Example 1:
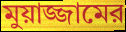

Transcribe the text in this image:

মুয়াজ্জামের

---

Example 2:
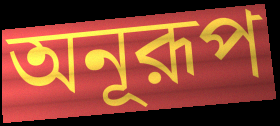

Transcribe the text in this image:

অনূরূপ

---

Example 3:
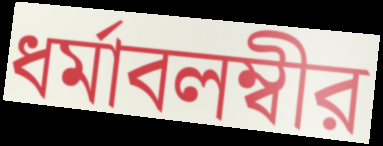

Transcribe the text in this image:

ধর্মাবলম্বীর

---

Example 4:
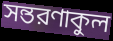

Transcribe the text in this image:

সন্তরণাকুল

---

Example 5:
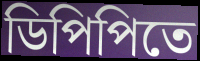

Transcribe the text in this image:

ডিপিপিতে